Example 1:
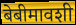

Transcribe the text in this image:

बेबीमावशी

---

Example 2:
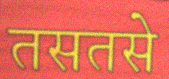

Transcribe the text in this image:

तसतसे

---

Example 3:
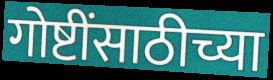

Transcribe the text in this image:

गोष्टींसाठीच्या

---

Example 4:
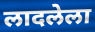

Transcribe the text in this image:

लादलेला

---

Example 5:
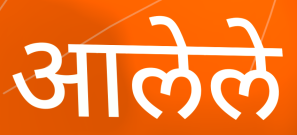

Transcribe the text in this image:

आलेले